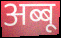
अब्बू